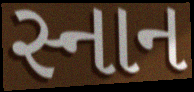
સ્નાન